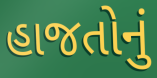
હાજતોનું